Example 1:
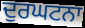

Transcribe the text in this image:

ਦੁਰਘਟਨਾ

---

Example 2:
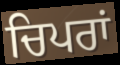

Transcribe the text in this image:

ਚਿਪਰਾਂ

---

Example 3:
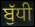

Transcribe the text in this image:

ਬੁੱਧੀ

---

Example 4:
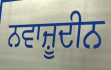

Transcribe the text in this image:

ਨਵਾਜ਼ੂਦੀਨ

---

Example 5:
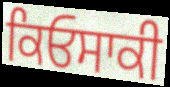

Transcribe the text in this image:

ਕਿਓਸਾਕੀ